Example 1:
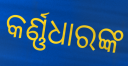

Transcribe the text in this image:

କର୍ଣ୍ଣଧାରଙ୍କ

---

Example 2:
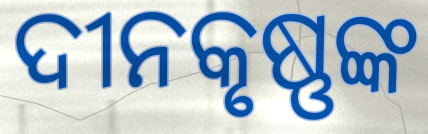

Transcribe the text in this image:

ଦୀନକୃଷ୍ଣଙ୍କ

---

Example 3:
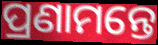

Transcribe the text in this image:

ପ୍ରଣାମନ୍ତେ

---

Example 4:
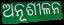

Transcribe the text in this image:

ଅନୂଶୀଳନ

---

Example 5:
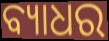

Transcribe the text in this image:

ବ୍ୟାଧର